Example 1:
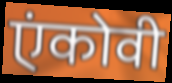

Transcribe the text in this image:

एंकोवी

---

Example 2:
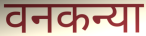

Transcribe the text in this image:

वनकन्या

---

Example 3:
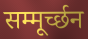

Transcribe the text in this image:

सम्मूर्च्छन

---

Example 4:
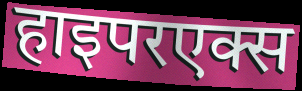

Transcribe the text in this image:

हाइपरएक्स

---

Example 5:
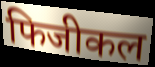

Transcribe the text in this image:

फिजीकल